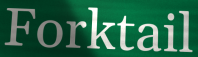
Forktail